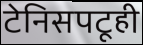
टेनिसपटूही